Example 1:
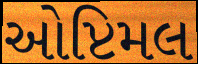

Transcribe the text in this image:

ઓપ્ટિમલ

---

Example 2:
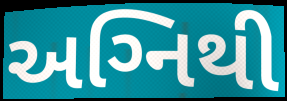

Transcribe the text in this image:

અગ્‍નિથી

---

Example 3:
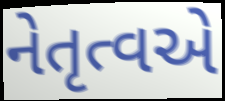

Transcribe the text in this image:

નેતૃત્વએ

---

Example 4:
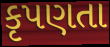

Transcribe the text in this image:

કૃપણતા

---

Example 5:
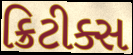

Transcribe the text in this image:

ક્રિટીક્સ